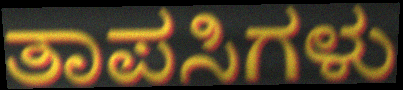
ತಾಪಸಿಗಳು